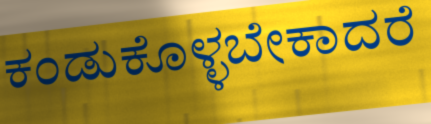
ಕಂಡುಕೊಳ್ಳಬೇಕಾದರೆ